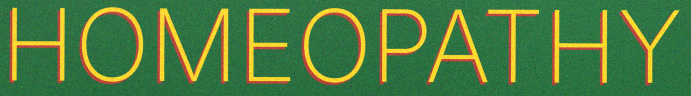
HOMEOPATHY